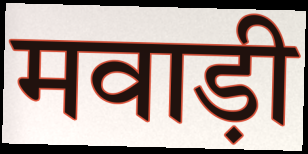
मवाड़ी